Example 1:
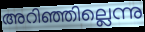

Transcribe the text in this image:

അറിഞ്ഞില്ലെന്നു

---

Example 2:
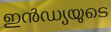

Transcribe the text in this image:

ഇൻഡ്യയുടെ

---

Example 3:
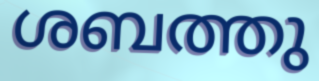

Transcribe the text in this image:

ശബത്തു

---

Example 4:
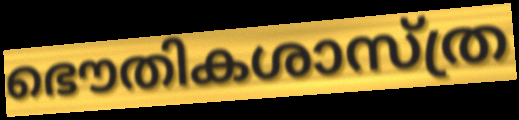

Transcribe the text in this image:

ഭൌതികശാസ്ത്ര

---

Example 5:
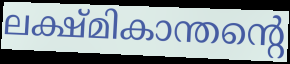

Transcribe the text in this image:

ലക്ഷ്മികാന്തന്റെ